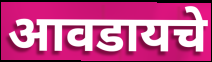
आवडायचे